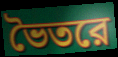
ভৈতরে